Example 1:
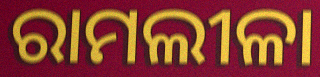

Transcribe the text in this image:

ରାମଲୀଳା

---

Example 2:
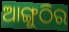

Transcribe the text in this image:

ଆଙ୍ଗୁଠିର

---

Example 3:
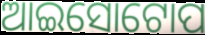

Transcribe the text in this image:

ଆଇସୋଟୋପ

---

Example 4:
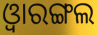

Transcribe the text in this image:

ଓ୍ବାରଙ୍ଗଲ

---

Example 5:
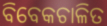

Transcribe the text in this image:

ବିବେକଚାଳିତ